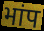
भांप